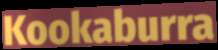
Kookaburra